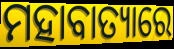
ମହାବାତ୍ୟାରେ